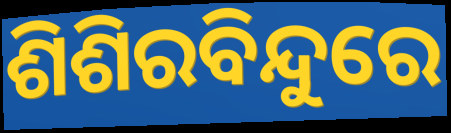
ଶିଶିରବିନ୍ଦୁରେ